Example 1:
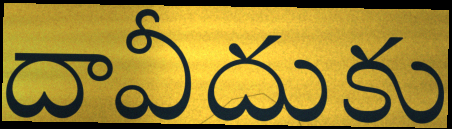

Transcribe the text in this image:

దావీదుకు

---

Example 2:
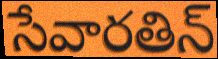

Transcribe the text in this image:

సేవారతిన్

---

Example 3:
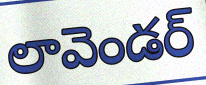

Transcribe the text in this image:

లావెండర్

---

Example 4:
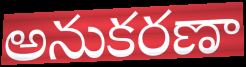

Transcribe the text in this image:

అనుకరణా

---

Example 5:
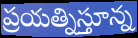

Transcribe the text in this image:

ప్రయత్నిస్తూన్న